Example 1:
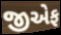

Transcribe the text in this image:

જીએફ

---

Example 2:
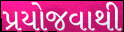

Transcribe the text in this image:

પ્રયોજવાથી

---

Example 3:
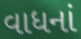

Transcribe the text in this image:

વાધનાં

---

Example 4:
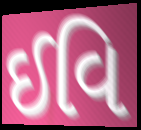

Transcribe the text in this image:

ઈવિ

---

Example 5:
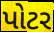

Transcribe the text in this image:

પોટર